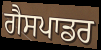
ਗੈਸਪਾਡਰ